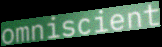
omniscient